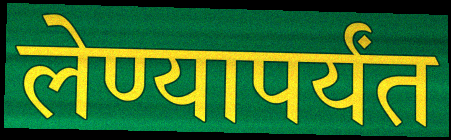
लेण्यापर्यंत